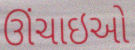
ઊંચાઇઓ